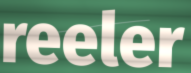
reeler